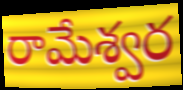
రామేశ్వర